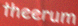
theerum